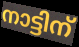
നാട്ടിന്